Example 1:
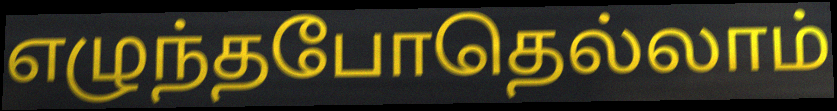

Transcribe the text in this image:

எழுந்தபோதெல்லாம்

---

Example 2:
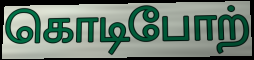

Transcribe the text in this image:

கொடிபோற்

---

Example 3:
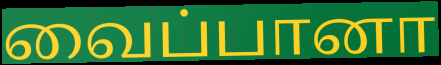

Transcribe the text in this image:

வைப்பானா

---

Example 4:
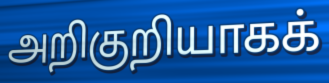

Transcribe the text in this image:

அறிகுறியாகக்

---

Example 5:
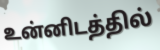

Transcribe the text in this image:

உன்னிடத்தில்